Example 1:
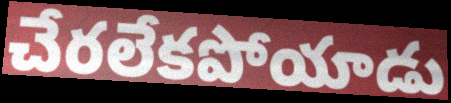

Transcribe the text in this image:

చేరలేకపోయాడు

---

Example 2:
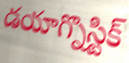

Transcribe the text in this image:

డయాగ్నొస్టిక్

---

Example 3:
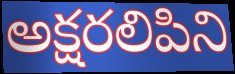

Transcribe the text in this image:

అక్షరలిపిని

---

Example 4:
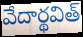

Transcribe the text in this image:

వేదార్థవిత్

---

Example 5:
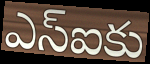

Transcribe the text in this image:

ఎస్ఐకు